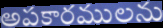
అపకారములను